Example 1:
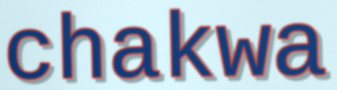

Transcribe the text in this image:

chakwa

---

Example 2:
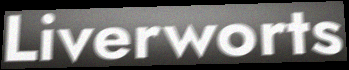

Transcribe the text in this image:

Liverworts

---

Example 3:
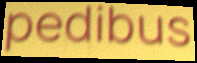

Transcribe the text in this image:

pedibus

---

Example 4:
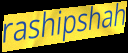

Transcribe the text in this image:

rashipshah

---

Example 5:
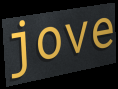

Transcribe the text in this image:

jove